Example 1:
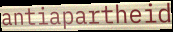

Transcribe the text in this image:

antiapartheid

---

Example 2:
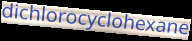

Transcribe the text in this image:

dichlorocyclohexane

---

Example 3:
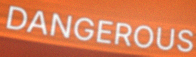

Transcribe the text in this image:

DANGEROUS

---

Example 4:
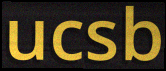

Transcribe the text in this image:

ucsb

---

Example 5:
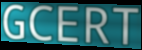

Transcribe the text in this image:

GCERT